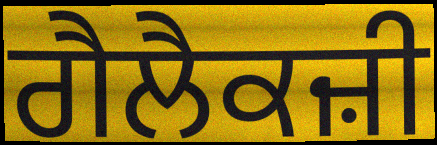
ਗੈਲੈਕਜ਼ੀ